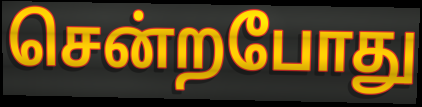
சென்றபோது